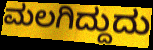
ಮಲಗಿದ್ದುದು